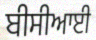
ਬੀਸੀਆਈ